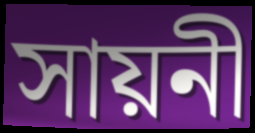
সায়নী